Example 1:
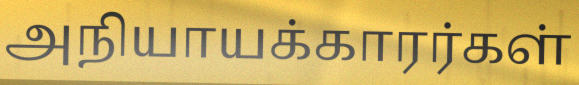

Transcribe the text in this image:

அநியாயக்காரர்கள்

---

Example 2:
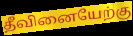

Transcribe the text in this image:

தீவினையேற்கு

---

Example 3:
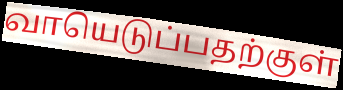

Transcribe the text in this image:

வாயெடுப்பதற்குள்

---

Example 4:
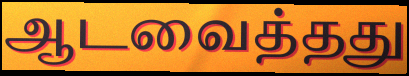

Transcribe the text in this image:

ஆடவைத்தது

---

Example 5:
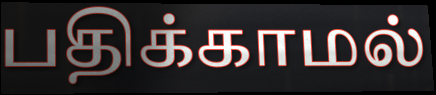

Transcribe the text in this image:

பதிக்காமல்